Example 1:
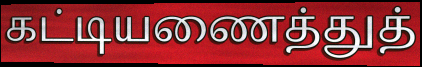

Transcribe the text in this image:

கட்டியணைத்துத்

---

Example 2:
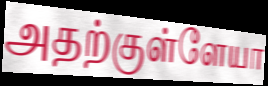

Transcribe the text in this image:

அதற்குள்ளேயா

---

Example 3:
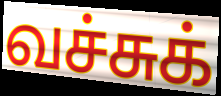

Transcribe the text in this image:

வச்சுக்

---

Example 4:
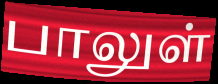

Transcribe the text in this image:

பாலுள்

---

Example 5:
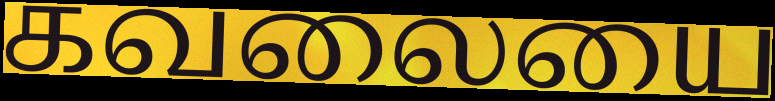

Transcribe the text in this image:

கவலையை